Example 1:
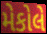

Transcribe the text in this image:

મેકોલે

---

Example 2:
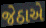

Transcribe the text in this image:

જેઠાએ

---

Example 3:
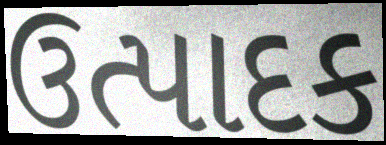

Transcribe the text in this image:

ઉત્પાદક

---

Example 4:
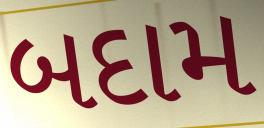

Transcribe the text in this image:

બદામ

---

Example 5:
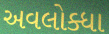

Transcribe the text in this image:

અવલોક્ધા